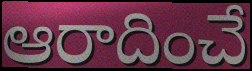
ఆరాదించే